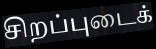
சிறப்புடைக்